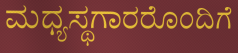
ಮಧ್ಯಸ್ಥಗಾರರೊಂದಿಗೆ